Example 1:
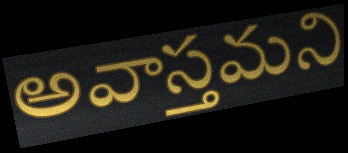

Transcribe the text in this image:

అవాస్తమని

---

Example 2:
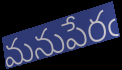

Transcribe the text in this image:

మనుపేరఁ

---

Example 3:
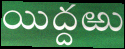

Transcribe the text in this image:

యిద్దఱు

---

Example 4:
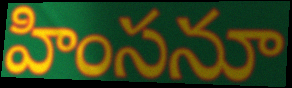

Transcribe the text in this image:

హింసనూ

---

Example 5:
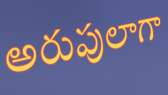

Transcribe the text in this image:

అరుపులాగా